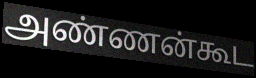
அண்ணன்கூட